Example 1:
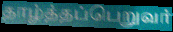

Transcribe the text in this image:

தாழ்த்தப்பெறுவர்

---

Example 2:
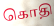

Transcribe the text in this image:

கொதி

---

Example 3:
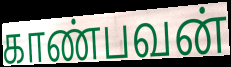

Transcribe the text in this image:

காண்பவன்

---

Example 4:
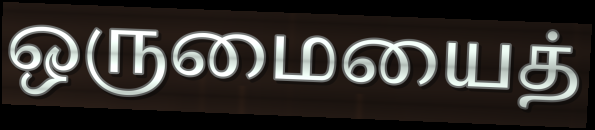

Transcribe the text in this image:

ஒருமையைத்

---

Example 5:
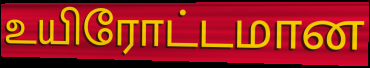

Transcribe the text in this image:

உயிரோட்டமான